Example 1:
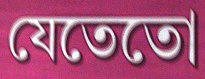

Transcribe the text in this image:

যেতেতো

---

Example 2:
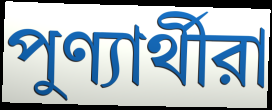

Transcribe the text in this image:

পুণ্যার্থীরা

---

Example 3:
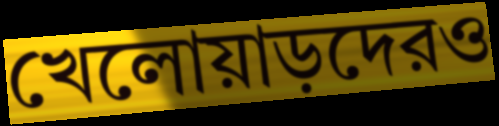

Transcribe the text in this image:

খেলোয়াড়দেরও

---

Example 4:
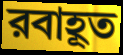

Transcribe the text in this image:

রবাহূত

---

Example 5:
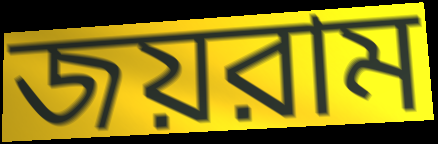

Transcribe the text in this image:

জয়রাম